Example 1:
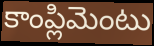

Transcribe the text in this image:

కాంప్లిమెంటు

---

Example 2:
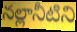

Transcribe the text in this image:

నల్లానీటిని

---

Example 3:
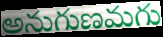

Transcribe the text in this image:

అనుగుణమగు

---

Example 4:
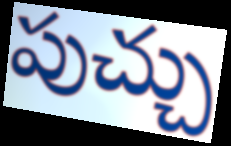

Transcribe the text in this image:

పుచ్చు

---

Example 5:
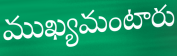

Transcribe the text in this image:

ముఖ్యమంటారు